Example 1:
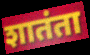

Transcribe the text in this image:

शातंता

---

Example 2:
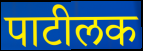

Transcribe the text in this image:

पाटीलक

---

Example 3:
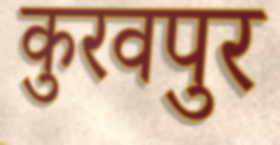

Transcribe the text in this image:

कुरवपुर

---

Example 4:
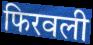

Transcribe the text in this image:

फिरवली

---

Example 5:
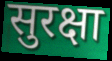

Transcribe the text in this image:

सुरक्षा